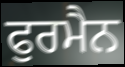
ਫੁਰਮੈਨ